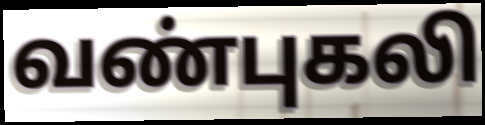
வண்புகலி